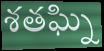
శతఘ్ని